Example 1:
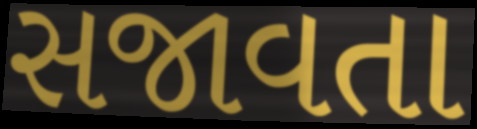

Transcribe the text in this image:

સજાવતા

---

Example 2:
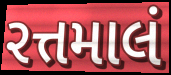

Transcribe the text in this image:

રત્તમાલં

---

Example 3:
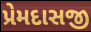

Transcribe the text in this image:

પ્રેમદાસજી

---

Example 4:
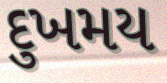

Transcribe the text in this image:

દુખમય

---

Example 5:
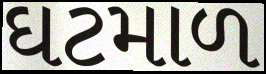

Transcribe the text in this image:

ઘટમાળ